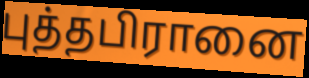
புத்தபிரானை